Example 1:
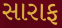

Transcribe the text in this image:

સારાફ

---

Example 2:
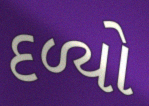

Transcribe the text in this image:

દળ્યો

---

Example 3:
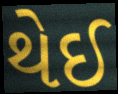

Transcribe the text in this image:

થેઈ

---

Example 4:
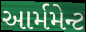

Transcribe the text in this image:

આર્મમેન્ટ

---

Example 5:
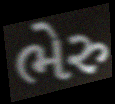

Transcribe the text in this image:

ભેરુ